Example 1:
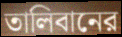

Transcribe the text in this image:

তালিবানের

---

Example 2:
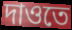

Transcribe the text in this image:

দাওতে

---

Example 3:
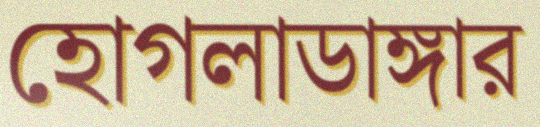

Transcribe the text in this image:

হোগলাডাঙ্গার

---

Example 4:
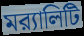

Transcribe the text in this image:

মর‍্যালিটি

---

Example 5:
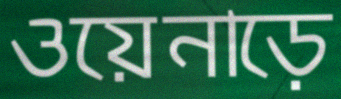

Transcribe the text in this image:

ওয়েনাড়ে